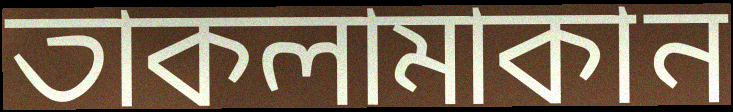
তাকলামাকান